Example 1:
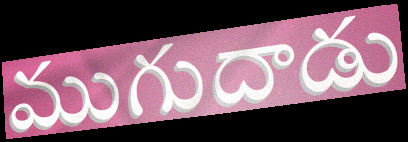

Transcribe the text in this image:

ముగుదాడు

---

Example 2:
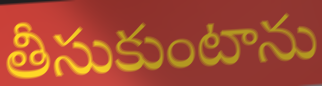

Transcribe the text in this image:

తీసుకుంటాను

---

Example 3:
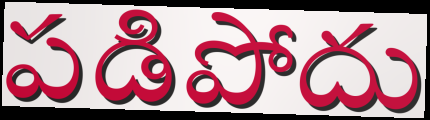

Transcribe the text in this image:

పడిపోదు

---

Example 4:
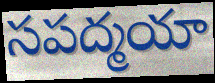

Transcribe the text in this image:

సపద్మయా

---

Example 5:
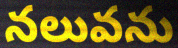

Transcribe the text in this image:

నలువను